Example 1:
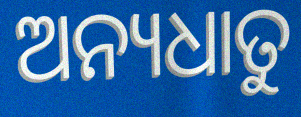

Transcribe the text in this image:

ଅନ୍ୟଧାତୁ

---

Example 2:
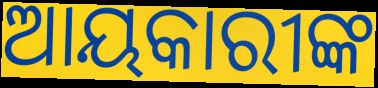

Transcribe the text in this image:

ଆୟକାରୀଙ୍କ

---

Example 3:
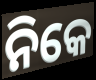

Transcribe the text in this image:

ନିକେ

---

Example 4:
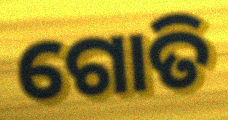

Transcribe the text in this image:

ଗୋତି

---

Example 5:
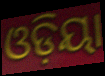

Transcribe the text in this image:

ଓଡ଼ିୟା